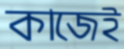
কাজেই